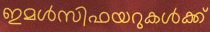
ഇമൾസിഫയറുകൾക്ക്